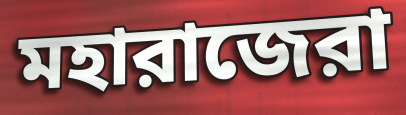
মহারাজেরা